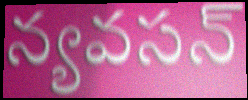
న్యవసన్